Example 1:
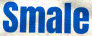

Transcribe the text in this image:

Smale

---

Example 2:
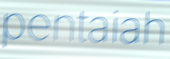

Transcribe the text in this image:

pentaiah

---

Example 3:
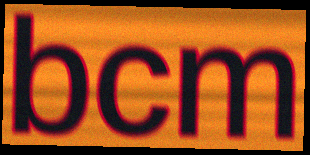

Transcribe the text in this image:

bcm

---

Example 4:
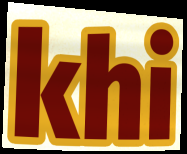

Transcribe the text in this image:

khi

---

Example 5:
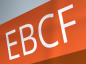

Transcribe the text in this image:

EBCF